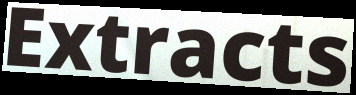
Extracts